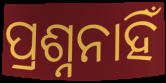
ପ୍ରଶ୍ନନାହିଁ